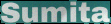
Sumita